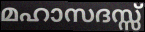
മഹാസദസ്സ്